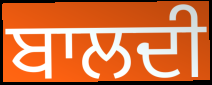
ਬਾਲਦੀ